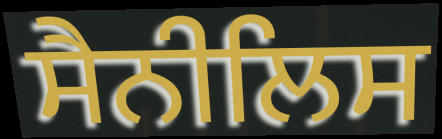
ਸੈਨੀਲਿਸ